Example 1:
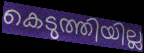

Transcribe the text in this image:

കെടുത്തിയില്ല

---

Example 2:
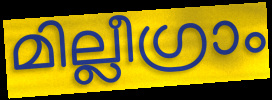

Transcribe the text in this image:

മില്ലീഗ്രാം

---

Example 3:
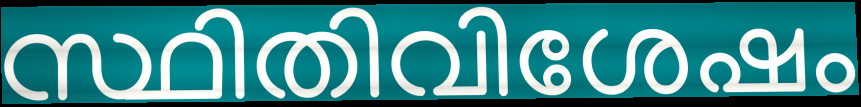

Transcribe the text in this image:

സ്ഥിതിവിശേഷം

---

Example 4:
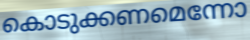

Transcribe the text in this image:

കൊടുക്കണമെന്നോ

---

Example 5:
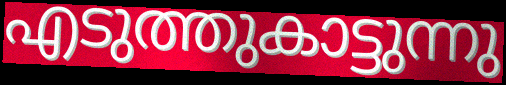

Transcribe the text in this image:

എടുത്തുകാട്ടുന്നു